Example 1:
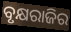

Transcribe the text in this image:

ବୃକ୍ଷରାଜିର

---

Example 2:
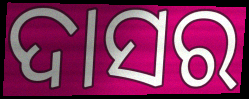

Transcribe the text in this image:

ଦାସର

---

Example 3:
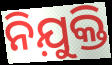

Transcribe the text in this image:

ନିଯ଼ୁକ୍ତି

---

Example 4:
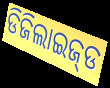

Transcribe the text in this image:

ଡିଜିଲାଇଜ୍‌ଡ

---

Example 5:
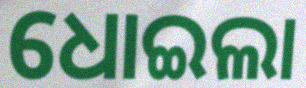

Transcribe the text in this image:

ଧୋଇଲା